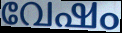
വേഷം